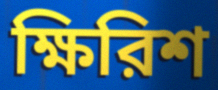
ক্ষিরিশ